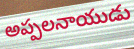
అప్పలనాయుడు